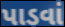
પાડવાં